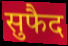
सुफैद